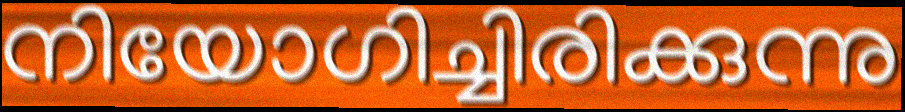
നിയോഗിച്ചിരിക്കുന്നു